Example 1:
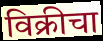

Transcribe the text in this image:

विक्रीचा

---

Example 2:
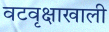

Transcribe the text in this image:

वटवृक्षाखाली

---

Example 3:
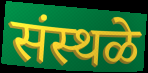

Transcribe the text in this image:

संस्थळे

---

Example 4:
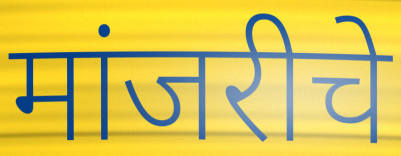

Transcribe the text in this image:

मांजरीचे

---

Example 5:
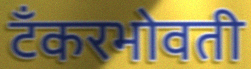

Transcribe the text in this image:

टँकरभोवती